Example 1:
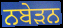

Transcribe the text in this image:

ਨਬੇੜਨ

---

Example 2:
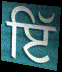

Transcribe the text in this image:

ਇੱ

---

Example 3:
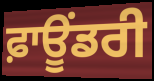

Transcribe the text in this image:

ਫ਼ਾਊਂਡਰੀ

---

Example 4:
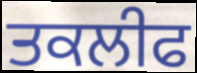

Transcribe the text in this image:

ਤਕਲੀਫ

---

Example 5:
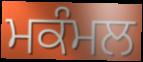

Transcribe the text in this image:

ਮਕੰਮਲ